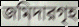
জমিদারগৃহ